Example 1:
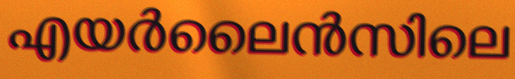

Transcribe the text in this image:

എയർലൈൻസിലെ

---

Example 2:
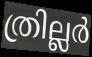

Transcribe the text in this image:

ത്രില്ലർ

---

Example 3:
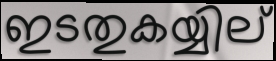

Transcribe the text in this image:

ഇടതുകയ്യില്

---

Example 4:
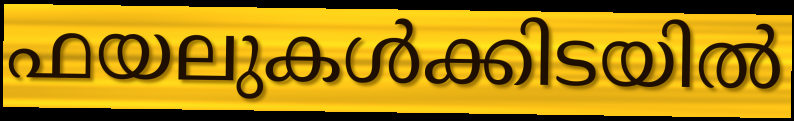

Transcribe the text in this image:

ഫയലുകൾക്കിടയിൽ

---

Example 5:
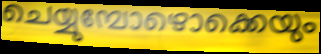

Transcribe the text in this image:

ചെയ്യുമ്പോഴൊക്കെയും